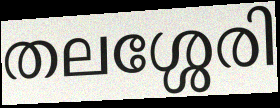
തലശ്ശേരി